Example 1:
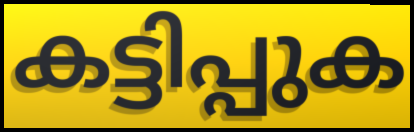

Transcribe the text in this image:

കട്ടിപ്പുക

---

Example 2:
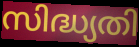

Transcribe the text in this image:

സിദ്ധ്യതി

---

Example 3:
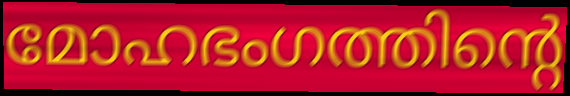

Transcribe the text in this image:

മോഹഭംഗത്തിന്റെ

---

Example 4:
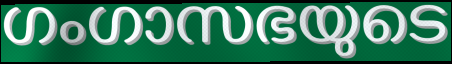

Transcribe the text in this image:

ഗംഗാസഭയുടെ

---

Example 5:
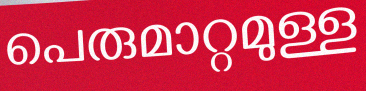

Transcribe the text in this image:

പെരുമാറ്റമുള്ള